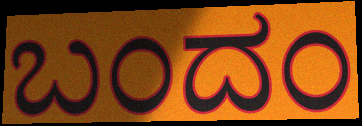
ಬಂದಂ